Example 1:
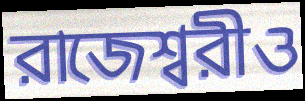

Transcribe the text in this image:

রাজেশ্বরীও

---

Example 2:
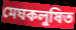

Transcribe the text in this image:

মেঘকলুষিত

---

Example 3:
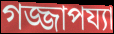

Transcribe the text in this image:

গজ্জাপয্যা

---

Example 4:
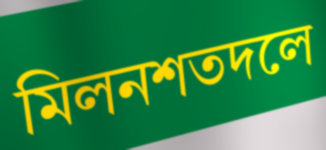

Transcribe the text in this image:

মিলনশতদলে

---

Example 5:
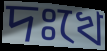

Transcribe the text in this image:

দঃখে